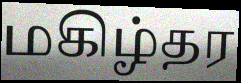
மகிழ்தர